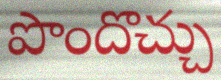
పొందొచ్చు